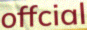
offcial